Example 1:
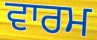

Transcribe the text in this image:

ਵਾਰਮ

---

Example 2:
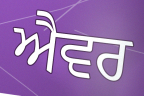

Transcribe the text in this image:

ਐਵਰ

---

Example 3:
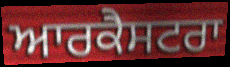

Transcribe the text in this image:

ਆਰਕੈਸਟਰਾ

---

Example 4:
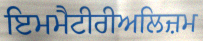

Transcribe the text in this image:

ਇਮਮੈਟੀਰੀਅਲਿਜ਼ਮ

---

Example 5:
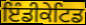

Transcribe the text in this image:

ਇੰਡੀਕੇਟਿਡ